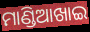
ମାଣ୍ଡିଆଖାଇ